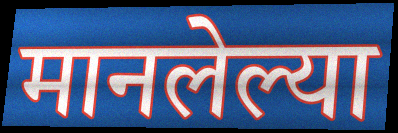
मानलेल्या